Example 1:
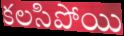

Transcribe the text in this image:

కలసిపోయి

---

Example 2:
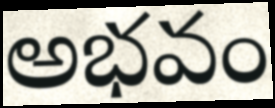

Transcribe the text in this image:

అభవం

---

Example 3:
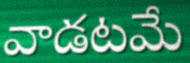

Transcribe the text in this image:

వాడటమే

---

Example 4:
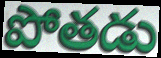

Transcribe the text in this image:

పోతడు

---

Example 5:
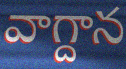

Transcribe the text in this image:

వాగ్దాన